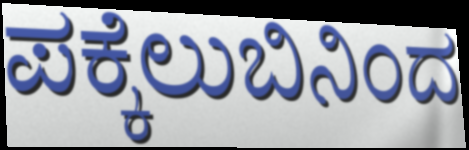
ಪಕ್ಕೆಲುಬಿನಿಂದ